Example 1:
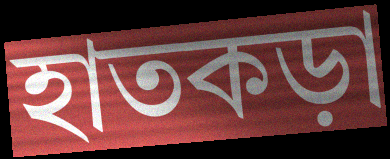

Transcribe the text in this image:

হাতকড়া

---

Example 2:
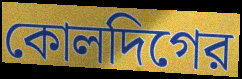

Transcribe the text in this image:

কোলদিগের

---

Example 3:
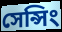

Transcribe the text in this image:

সেন্সিং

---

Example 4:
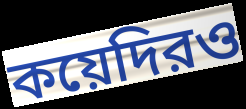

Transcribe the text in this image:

কয়েদিরও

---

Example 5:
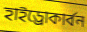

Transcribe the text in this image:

হাইড্রোকার্বন